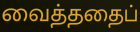
வைத்ததைப்